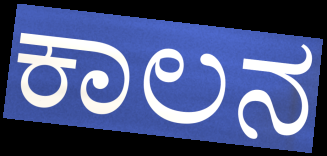
ಕಾಲನ